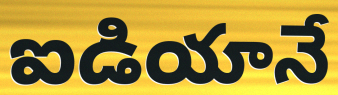
ఐడియానే